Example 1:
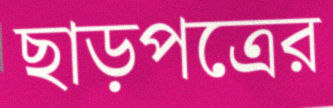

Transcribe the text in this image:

ছাড়পত্রের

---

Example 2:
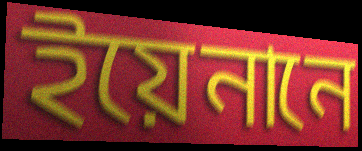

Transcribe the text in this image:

ইয়েনানে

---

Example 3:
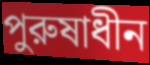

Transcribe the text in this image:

পুরুষাধীন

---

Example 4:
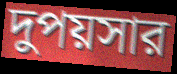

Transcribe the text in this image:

দুপয়সার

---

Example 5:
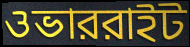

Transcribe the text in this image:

ওভাররাইট